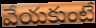
వేయకుంటే